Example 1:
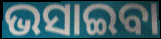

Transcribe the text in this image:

ଭସାଇବା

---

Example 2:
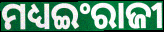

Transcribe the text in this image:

ମଧ୍ୟଇଂରାଜୀ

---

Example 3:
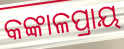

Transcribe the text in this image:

କଙ୍କାଳପ୍ରାୟ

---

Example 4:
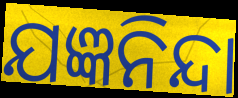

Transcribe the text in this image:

ଯଜ୍ଞନିନ୍ଦା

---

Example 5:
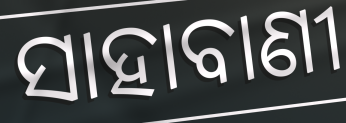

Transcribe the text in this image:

ସାହାବାଣୀ